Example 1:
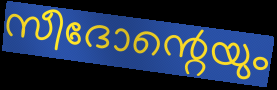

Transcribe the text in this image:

സീദോന്റെയും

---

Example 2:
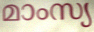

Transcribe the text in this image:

മാംസ്യ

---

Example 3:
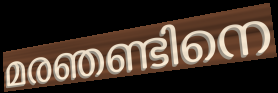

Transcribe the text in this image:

മരഞണ്ടിനെ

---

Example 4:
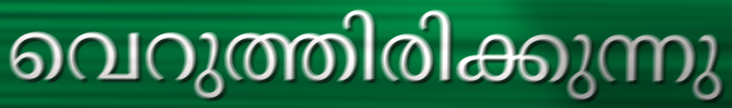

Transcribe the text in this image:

വെറുത്തിരിക്കുന്നു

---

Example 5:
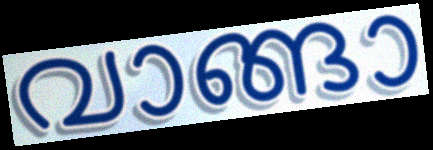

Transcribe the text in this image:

വാങ്ങാ